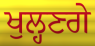
ਖੁਲ੍ਹਣਗੇ